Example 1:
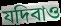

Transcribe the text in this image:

যদিবাও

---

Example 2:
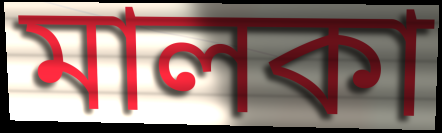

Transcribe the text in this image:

মালকা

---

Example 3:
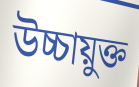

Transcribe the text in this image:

উচ্চায়ুক্ত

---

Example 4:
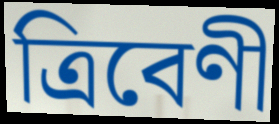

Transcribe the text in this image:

ত্ৰিবেণী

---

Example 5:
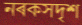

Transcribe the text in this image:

নৰকসদৃশ